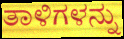
ತಾಳಿಗಳನ್ನು